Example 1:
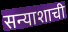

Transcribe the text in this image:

सन्याशाची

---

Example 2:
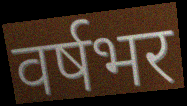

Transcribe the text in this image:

वर्षभर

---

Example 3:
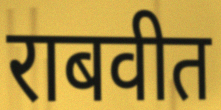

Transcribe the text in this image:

राबवीत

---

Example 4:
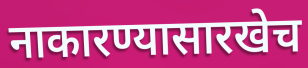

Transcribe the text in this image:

नाकारण्यासारखेच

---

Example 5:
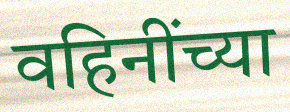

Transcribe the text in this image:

वहिनींच्या